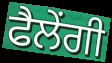
ਫੈਲੇਂਗੀ